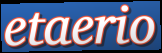
etaerio